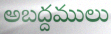
అబద్దములు